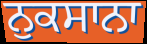
ਨੁਕਸਾਨਾ